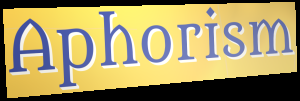
Aphorism